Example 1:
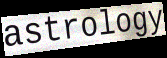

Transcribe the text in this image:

astrology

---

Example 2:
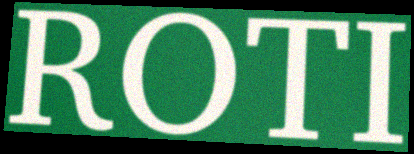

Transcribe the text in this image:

ROTI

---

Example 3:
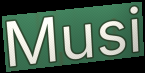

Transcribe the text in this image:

Musi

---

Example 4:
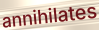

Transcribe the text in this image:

annihilates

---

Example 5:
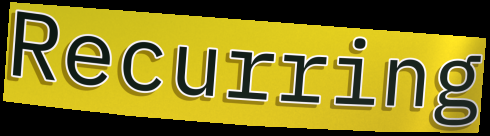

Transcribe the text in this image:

Recurring